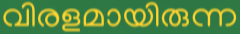
വിരളമായിരുന്ന